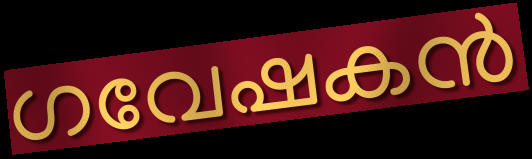
ഗവേഷകൻ